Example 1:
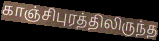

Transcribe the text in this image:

காஞ்சிபுரத்திலிருந்த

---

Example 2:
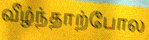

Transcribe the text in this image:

வீழ்ந்தாற்போல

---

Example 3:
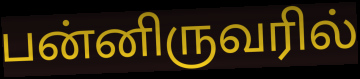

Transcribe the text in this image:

பன்னிருவரில்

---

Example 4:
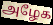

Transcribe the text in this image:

அழேக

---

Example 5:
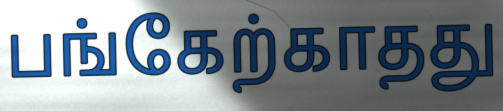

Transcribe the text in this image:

பங்கேற்காதது